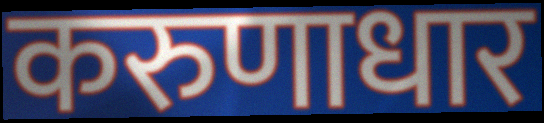
करुणाधार